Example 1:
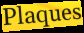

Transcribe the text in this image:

Plaques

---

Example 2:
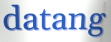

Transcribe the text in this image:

datang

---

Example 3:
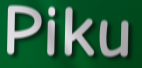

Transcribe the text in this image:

Piku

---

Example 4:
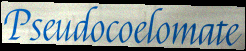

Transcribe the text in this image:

Pseudocoelomate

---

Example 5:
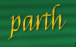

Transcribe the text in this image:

parth